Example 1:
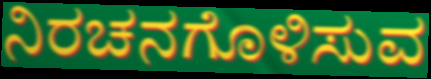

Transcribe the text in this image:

ನಿರಚನಗೊಳಿಸುವ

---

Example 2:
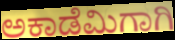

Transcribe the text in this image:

ಅಕಾಡೆಮಿಗಾಗಿ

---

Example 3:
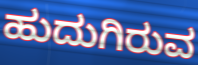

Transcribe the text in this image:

ಹುದುಗಿರುವ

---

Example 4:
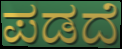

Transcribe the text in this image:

ಪಡದೆ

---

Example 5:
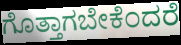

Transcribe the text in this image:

ಗೊತ್ತಾಗಬೇಕೆಂದರೆ